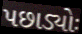
પછાડ્યોઃ